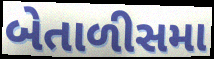
બેતાળીસમા